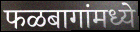
फळबागांमध्ये